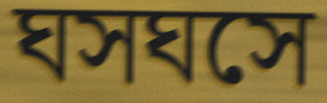
ঘসঘসে